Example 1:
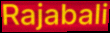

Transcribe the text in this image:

Rajabali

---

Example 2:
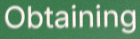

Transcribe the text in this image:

Obtaining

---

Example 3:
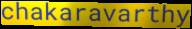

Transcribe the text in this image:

chakaravarthy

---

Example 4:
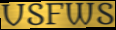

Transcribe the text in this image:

USFWS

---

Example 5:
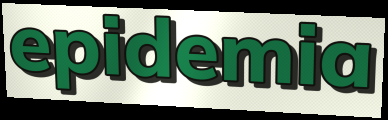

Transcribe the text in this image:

epidemia